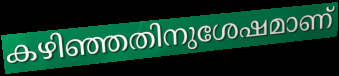
കഴിഞ്ഞതിനുശേഷമാണ്